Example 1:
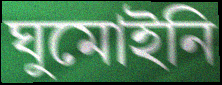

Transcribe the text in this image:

ঘুমোইনি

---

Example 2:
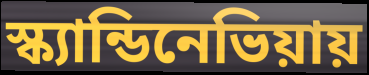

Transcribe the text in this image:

স্ক্যান্ডিনেভিয়ায়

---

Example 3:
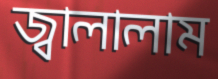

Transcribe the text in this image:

জ্বালালাম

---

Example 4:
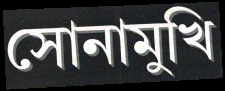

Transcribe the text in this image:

সোনামুখি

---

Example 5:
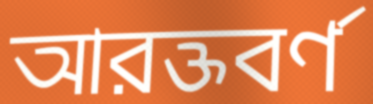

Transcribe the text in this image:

আরক্তবর্ণ